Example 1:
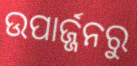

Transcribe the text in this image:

ଉପାର୍ଜ୍ଜନରୁ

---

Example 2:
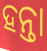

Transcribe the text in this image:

ହନ୍ତା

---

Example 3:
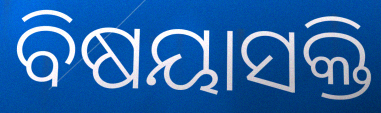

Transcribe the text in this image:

ବିଷୟାସକ୍ତି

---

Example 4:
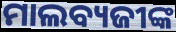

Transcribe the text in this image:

ମାଲବ୍ୟଜୀଙ୍କ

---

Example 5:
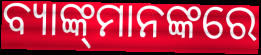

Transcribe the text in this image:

ବ୍ୟାଙ୍କ୍‌ମାନଙ୍କରେ